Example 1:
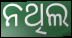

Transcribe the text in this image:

ନଥିଲ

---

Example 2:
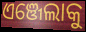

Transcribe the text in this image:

ଏଞ୍ଜେଲାକୁ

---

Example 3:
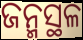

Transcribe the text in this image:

ଜନ୍ମସ୍ଥଳ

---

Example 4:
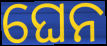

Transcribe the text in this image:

ଘେନ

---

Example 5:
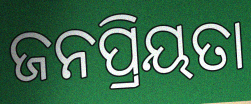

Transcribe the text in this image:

ଜନପ୍ରିୟତା